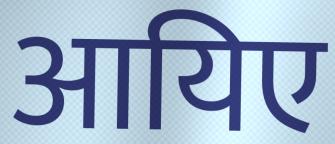
आयिए